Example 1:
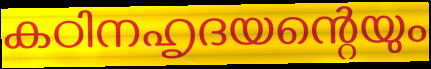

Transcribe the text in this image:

കഠിനഹൃദയന്റെയും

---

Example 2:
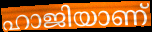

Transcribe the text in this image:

ഹാജിയാണ്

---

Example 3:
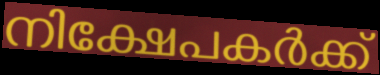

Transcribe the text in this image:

നിക്ഷേപകർക്ക്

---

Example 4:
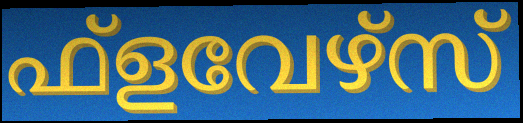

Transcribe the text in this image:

ഫ്ളവേഴ്സ്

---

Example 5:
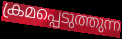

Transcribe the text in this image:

ക്രമപ്പെടുത്തുന്ന